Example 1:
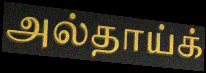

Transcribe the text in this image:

அல்தாய்க்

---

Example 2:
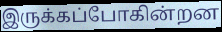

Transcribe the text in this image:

இருக்கப்போகின்றன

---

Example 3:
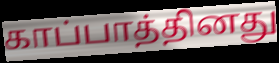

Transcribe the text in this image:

காப்பாத்தினது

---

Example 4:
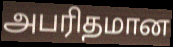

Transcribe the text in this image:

அபரிதமான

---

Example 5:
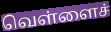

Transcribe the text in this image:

வெள்ளைச்